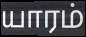
யாரம்